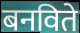
बनविते